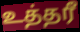
உத்தரீ